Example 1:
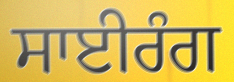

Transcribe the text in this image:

ਸਾਈਰੰਗ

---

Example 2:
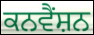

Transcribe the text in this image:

ਕਨਵੈੰਸ਼ਨ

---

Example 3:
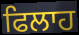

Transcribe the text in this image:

ਫਿਲਾਹ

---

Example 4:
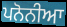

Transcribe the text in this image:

ਪਨੋਨੀਆ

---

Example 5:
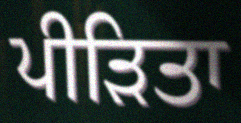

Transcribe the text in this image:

ਪੀੜਿਤਾ